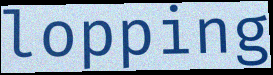
lopping